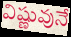
విష్ణువునే